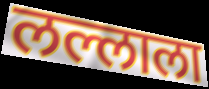
लल्लाला